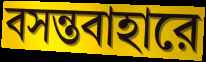
বসন্তবাহারে